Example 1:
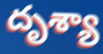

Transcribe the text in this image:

దృశ్యా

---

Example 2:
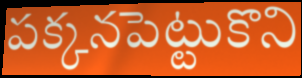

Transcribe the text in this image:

పక్కనపెట్టుకొని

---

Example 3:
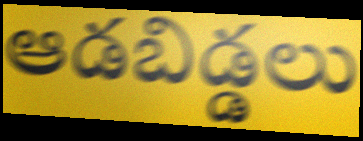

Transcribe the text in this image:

ఆడబిడ్డలు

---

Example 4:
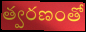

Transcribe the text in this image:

త్వరణంతో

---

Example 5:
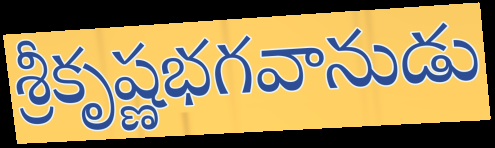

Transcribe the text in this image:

శ్రీకృష్ణభగవానుడు